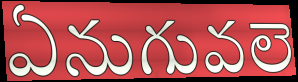
ఏనుగువలె